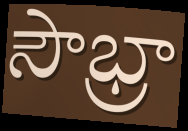
సౌభ్రా